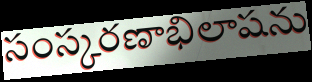
సంస్కరణాభిలాషను